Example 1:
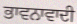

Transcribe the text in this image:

ਭਾਵਨਾਵਾਦੀ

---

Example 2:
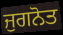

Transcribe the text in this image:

ਜੁਗਨੋਤ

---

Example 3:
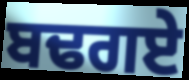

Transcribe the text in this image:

ਬਢਗਏ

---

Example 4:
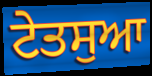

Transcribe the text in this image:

ਟੇਤਸੁਆ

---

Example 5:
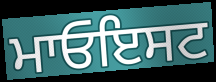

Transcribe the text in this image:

ਮਾਓਇਸਟ